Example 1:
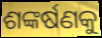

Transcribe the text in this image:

ଶଙ୍କର୍ଷଣକୁ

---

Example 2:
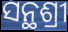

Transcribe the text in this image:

ସନ୍ଥଶ୍ରୀ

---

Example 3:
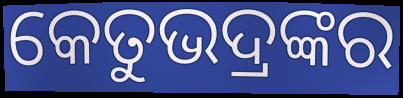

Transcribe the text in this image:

କେତୁଭଦ୍ରଙ୍କର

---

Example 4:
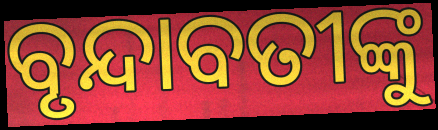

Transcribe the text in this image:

ବୃନ୍ଦାବତୀଙ୍କୁ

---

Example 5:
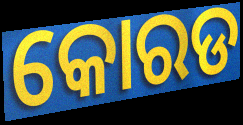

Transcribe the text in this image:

କୋରଡ